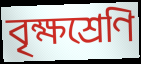
বৃক্ষশ্রেণি